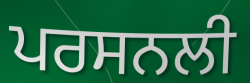
ਪਰਸਨਲੀ